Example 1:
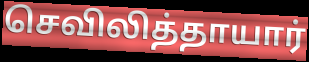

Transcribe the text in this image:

செவிலித்தாயார்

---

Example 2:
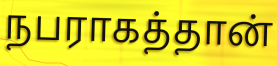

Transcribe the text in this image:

நபராகத்தான்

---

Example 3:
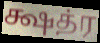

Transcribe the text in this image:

க்ஷத்ர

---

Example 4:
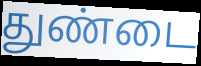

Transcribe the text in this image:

துண்டை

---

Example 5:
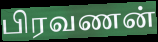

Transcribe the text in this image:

பிரவணன்